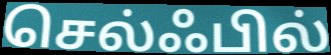
செல்ஃபில்